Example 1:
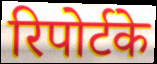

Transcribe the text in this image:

रिपोर्टके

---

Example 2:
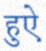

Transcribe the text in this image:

हुऐ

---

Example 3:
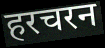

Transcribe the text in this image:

हरचरन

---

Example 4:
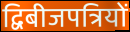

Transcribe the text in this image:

द्विबीजपत्रियों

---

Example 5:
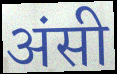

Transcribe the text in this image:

अंसी